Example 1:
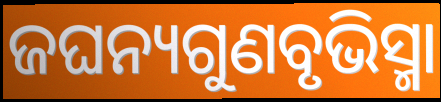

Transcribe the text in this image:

ଜଘନ୍ୟଗୁଣବୃଭିସ୍ମା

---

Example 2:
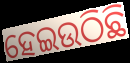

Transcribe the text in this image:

ହେଇଉଠିଛି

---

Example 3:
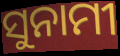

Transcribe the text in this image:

ସୁନାମୀ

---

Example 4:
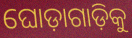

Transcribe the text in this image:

ଘୋଡ଼ାଗାଡ଼ିକୁ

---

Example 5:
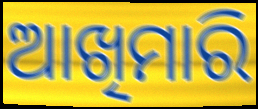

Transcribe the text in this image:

ଆଖିମାରି